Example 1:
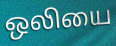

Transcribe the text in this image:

ஒலியை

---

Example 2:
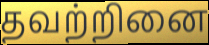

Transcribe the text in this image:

தவற்றினை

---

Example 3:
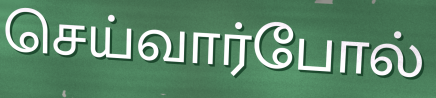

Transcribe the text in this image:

செய்வார்போல்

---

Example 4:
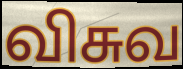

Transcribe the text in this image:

விசுவ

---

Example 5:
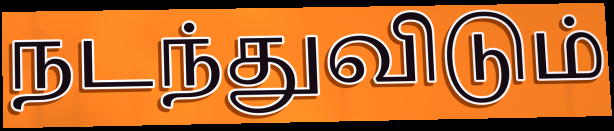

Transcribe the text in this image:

நடந்துவிடும்